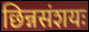
छिन्नसंशयः